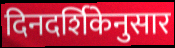
दिनदर्शिकेनुसार